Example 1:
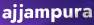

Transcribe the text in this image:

ajjampura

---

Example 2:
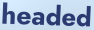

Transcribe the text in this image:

headed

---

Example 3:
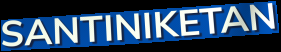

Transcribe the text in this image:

SANTINIKETAN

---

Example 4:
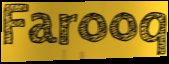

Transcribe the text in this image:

Farooq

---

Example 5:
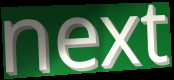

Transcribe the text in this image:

next